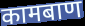
कामबाण